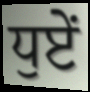
ਧੁਏਂ